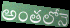
అంతలోనె